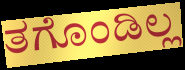
ತಗೊಂಡಿಲ್ಲ